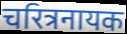
चरित्रनायक